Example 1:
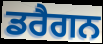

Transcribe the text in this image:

ਡਰੈਗਨ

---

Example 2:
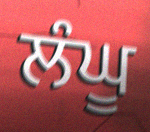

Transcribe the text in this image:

ਲੰਘੂ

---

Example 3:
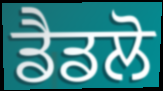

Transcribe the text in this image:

ਡੈਡਲੋ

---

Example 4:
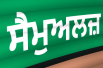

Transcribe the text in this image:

ਸੈਮੁਅਲਜ਼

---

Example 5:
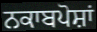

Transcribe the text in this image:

ਨਕਾਬਪੋਸ਼ਾਂ